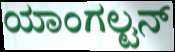
ಯಾಂಗಲ್ಟನ್